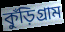
কুঁড়িগ্রাম